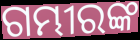
ଗମ୍ଭୀରଙ୍କ